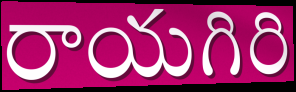
రాయగిరి